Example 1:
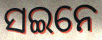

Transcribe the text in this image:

ସଇନେ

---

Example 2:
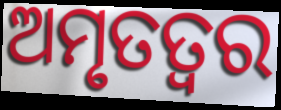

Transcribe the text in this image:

ଅମୃତତ୍ଵର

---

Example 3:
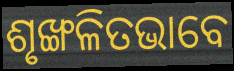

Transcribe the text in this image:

ଶୃଙ୍ଖଳିତଭାବେ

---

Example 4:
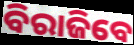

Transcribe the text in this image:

ବିରାଜିବେ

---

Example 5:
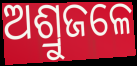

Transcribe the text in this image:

ଅଶ୍ରୁଜଳେ